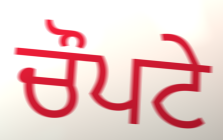
ਚੌਪਟੇ